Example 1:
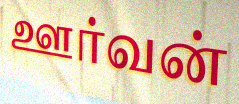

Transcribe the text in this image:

ஊர்வன்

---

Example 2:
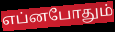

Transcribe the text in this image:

எப்னபோதும்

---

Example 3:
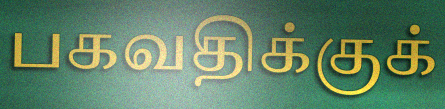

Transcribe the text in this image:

பகவதிக்குக்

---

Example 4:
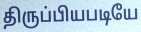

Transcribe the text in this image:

திருப்பியபடியே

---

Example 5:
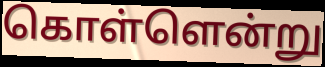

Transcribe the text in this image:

கொள்ளென்று